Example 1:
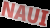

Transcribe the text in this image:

NAUI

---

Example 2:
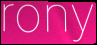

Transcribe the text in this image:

rony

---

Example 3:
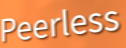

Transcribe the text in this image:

Peerless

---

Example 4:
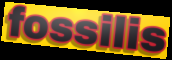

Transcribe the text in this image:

fossilis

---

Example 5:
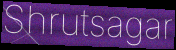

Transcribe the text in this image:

Shrutsagar